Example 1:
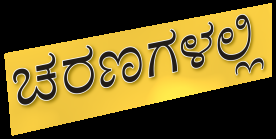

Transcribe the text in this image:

ಚರಣಗಳಲ್ಲಿ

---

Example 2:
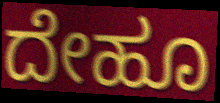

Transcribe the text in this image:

ದೇಹೂ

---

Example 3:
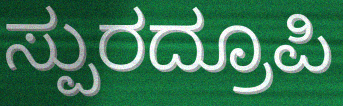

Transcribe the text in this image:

ಸ್ಪುರದ್ರೂಪಿ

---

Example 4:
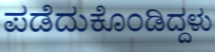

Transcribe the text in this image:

ಪಡೆದುಕೊಂಡಿದ್ದಳು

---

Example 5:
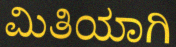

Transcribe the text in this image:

ಮಿತಿಯಾಗಿ